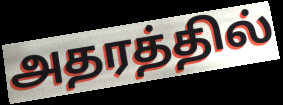
அதரத்தில்